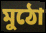
মুঠো